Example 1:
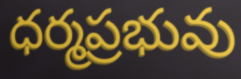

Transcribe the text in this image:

ధర్మప్రభువు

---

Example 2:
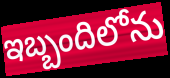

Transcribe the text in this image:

ఇబ్బందిలోను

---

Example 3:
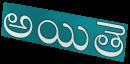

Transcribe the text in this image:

అయితె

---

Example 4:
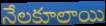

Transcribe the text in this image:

నేలకూలాయి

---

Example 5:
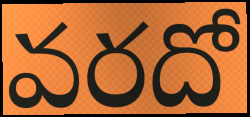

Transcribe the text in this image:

వరదో